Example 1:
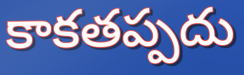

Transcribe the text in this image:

కాకతప్పదు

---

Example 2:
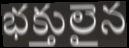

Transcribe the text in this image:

భక్తులైన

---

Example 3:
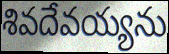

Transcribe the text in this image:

శివదేవయ్యను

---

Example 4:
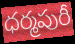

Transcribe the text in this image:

ధర్మపురీ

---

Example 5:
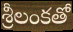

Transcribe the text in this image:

శ్రీలంకతో